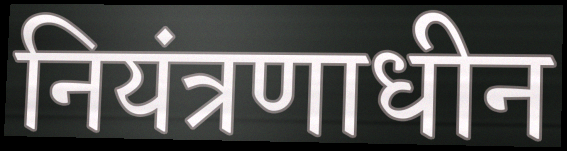
नियंत्रणाधीन